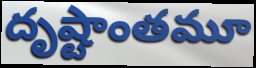
దృష్టాంతమూ